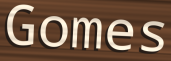
Gomes